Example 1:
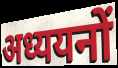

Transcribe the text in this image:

अध्ययनों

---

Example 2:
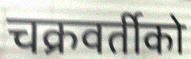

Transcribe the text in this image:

चक्रवर्तीको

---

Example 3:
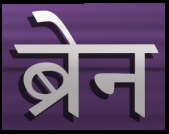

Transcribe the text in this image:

ब्रेन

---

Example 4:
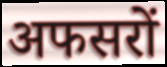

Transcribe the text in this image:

अफसरों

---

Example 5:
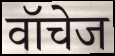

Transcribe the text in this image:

वॉचेज